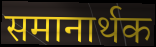
समानार्थक